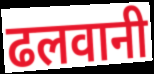
ढलवानी